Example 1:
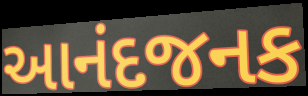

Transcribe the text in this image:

આનંદજનક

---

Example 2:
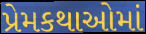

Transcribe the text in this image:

પ્રેમકથાઓમાં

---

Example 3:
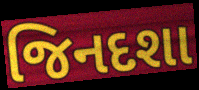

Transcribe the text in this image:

જિનદશા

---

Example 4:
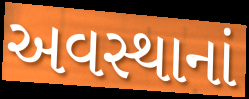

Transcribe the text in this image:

અવસ્થાનાં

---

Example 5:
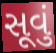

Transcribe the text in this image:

સૂવું